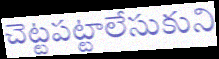
చెట్టపట్టాలేసుకుని